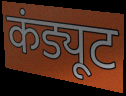
कंड्यूट